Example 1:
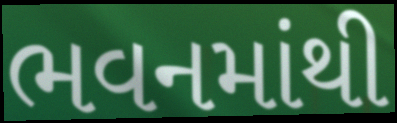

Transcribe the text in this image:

ભવનમાંથી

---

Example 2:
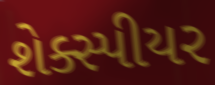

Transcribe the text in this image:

શેક્સ્પીયર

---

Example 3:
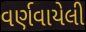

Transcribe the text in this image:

વર્ણવાયેલી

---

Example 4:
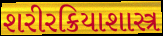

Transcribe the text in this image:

શરીરક્રિયાશાસ્ત્ર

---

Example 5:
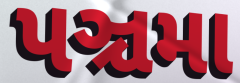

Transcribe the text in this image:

પઞ્ચમા